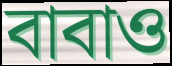
বাবাও